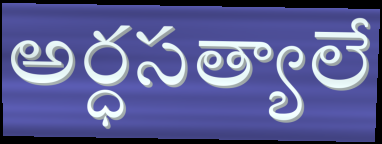
అర్ధసత్యాలే